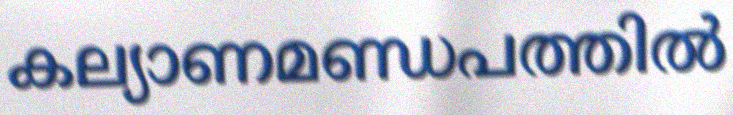
കല്യാണമണ്ഡപത്തിൽ